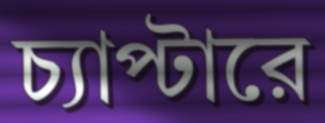
চ্যাপ্টারে